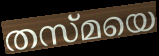
തസ്മയെ